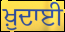
ਖ਼ੁਦਾਈ